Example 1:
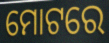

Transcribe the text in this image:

ମୋଟରେ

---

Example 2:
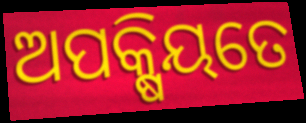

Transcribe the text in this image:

ଅପକ୍ଷିୟତେ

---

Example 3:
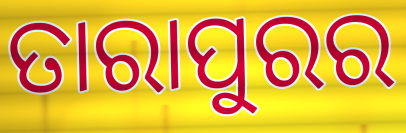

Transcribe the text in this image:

ତାରାପୁରର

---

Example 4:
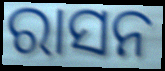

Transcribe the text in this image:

ରାସନ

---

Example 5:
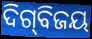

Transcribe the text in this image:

ଦିଗ୍‌ବିଜୟ